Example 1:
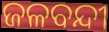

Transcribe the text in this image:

ଜଳବନ୍ଦୀ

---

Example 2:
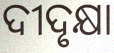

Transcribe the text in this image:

ଦୀଦୃକ୍ଷା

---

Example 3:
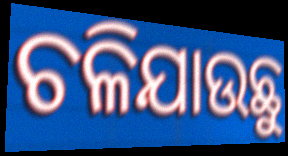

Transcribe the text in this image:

ଚଳିଯାଉଛୁ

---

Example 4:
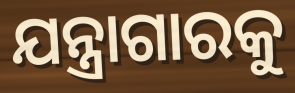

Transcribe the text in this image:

ଯନ୍ତ୍ରାଗାରକୁ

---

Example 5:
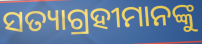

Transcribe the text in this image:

ସତ୍ୟାଗ୍ରହୀମାନଙ୍କୁ